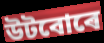
উটবোৰে